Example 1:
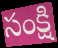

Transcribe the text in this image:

సంక్షి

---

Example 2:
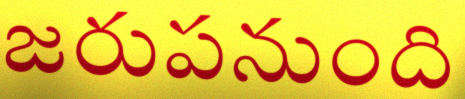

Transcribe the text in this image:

జరుపనుంది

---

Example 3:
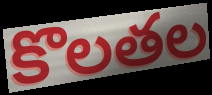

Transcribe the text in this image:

కొలతల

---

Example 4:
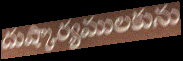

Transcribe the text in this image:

దుష్కార్యములకును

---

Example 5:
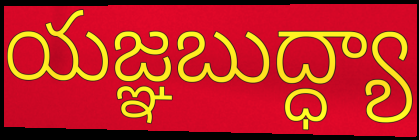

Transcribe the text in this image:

యజ్ఞబుద్ధ్యా